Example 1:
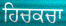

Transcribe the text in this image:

ਹਿਚਕਚਾ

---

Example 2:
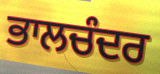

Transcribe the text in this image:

ਭਾਲਚੰਦਰ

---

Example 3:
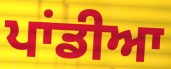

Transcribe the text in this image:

ਪਾਂਡੀਆ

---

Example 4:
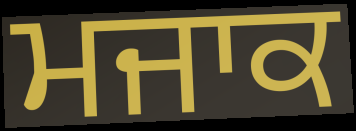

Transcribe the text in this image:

ਮਜਾਕ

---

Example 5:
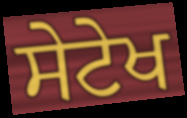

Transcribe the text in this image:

ਸੇਟੇਖ